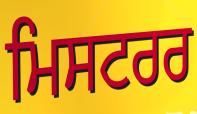
ਮਿਸਟਰਰ